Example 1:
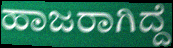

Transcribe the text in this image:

ಹಾಜರಾಗಿದ್ದೆ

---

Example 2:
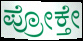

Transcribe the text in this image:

ಪ್ರೋಕ್ತೇ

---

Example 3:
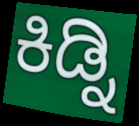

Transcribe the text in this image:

ಕಿಡ್ನಿ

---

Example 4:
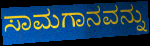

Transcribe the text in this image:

ಸಾಮಗಾನವನ್ನು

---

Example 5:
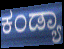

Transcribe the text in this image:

ಕಂಡ್ಯಾ